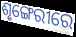
ଶୃଙ୍ଗେରୀରେ